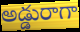
అడ్డురాగా